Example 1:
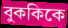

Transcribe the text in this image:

বুককিকে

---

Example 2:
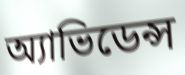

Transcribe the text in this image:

অ্যাভিডেন্স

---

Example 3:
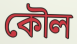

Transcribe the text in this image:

কৌল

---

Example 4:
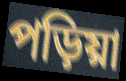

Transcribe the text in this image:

পড়িয়া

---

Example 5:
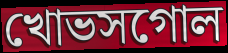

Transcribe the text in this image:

খোভসগোল